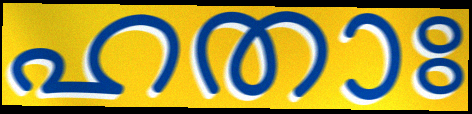
ഹതാഃ